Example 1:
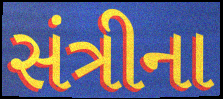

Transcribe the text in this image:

સંત્રીના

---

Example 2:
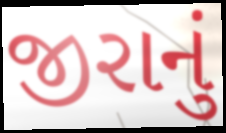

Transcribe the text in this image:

જીરાનું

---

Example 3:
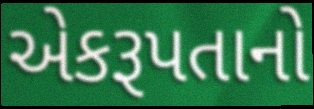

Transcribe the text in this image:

એકરૂપતાનો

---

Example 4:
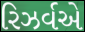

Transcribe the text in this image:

રિઝર્વએ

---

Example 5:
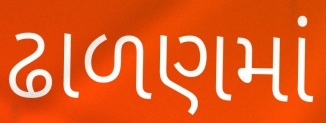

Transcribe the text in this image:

ઢાળણમાં